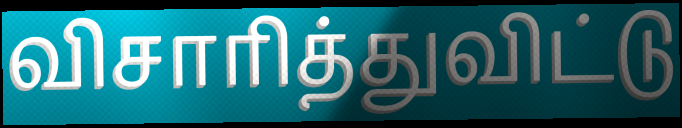
விசாரித்துவிட்டு